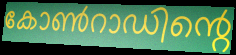
കോൺറാഡിന്റെ